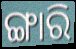
ଙ୍ଗାରି